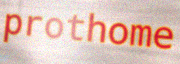
prothome